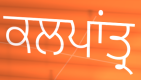
ਕਲਪਾਂਤ੍ਰ